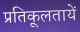
प्रतिकूलतायें